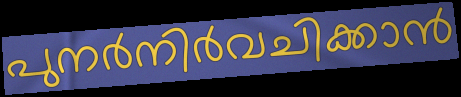
പുനർനിർവചിക്കാൻ